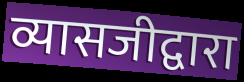
व्यासजीद्वारा